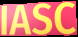
IASC